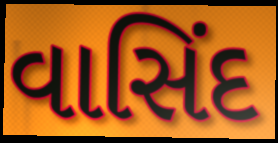
વાસિંદ